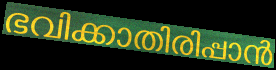
ഭവിക്കാതിരിപ്പാൻ